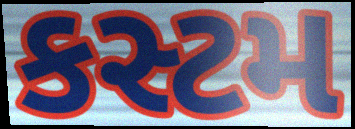
કસ્ટમ